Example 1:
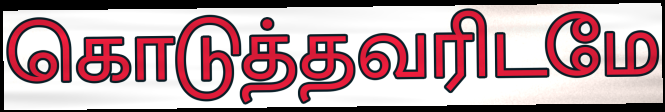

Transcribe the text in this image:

கொடுத்தவரிடமே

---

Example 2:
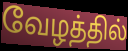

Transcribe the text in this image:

வேழத்தில்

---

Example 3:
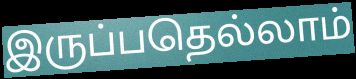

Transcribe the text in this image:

இருப்பதெல்லாம்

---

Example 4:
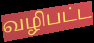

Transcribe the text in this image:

வழிபட்ட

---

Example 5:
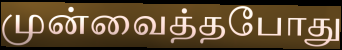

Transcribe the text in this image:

முன்வைத்தபோது